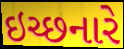
ઇચ્છનારે